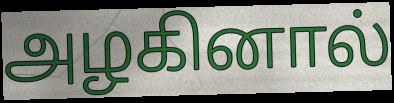
அழகினால்